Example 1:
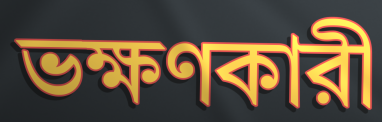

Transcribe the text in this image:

ভক্ষণকারী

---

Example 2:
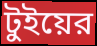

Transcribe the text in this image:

টুইয়ের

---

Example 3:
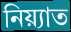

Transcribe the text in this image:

নিয়্যাত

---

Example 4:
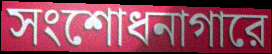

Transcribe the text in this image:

সংশোধনাগারে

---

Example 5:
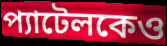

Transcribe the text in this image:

প্যাটেলকেও